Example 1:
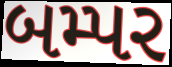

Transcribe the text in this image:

બમ્પર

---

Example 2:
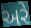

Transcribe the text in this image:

અરે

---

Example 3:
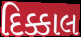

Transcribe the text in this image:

દિક્કાલ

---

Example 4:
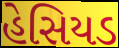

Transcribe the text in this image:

હેસિયડ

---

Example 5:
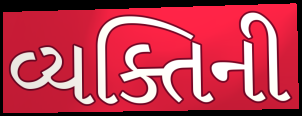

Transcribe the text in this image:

વ્યક્તિની